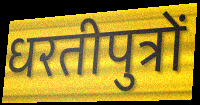
धरतीपुत्रों